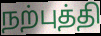
நற்புத்தி